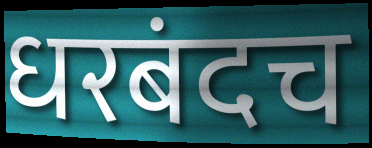
धरबंदच